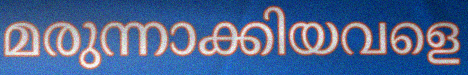
മരുന്നാക്കിയവളെ